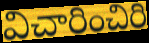
విచారించిరి